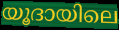
യൂദായിലെ